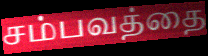
சம்பவத்தை